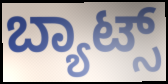
ಬ್ಯಾಟ್ಸ್